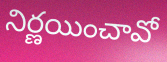
నిర్ణయించావో